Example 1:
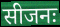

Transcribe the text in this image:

सीजनः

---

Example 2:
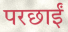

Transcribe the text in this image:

परछाईं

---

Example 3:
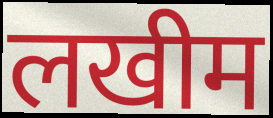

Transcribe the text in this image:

लखीम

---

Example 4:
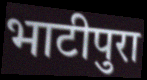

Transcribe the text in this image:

भाटीपुरा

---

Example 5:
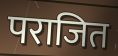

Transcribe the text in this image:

पराजित